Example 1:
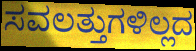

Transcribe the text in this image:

ಸವಲತ್ತುಗಳಿಲ್ಲದ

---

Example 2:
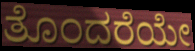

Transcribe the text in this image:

ತೊಂದರೆಯೇ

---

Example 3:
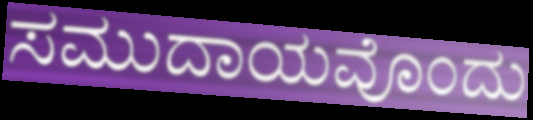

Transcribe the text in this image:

ಸಮುದಾಯವೊಂದು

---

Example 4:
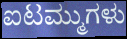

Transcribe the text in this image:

ಐಟಮ್ಮುಗಳು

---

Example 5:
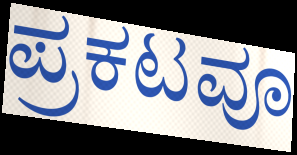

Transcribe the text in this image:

ಪ್ರಕಟವೂ